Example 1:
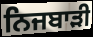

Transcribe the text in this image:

ਨਿਜਬਾੜੀ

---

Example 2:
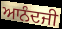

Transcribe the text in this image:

ਆਨੰਦਜੀ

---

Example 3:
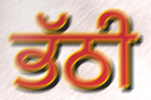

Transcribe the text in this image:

ਭੱਠੀ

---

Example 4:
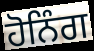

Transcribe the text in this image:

ਹੋਨਿੰਗ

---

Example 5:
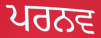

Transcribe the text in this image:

ਪਰਨਵ